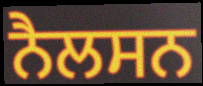
ਨੈਲਸਨ